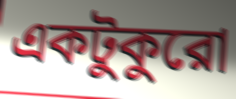
একটুকুরো